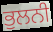
ਭੁਲਨੀ